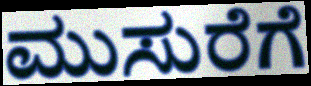
ಮುಸುರೆಗೆ